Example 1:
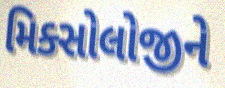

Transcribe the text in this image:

મિક્સોલોજીને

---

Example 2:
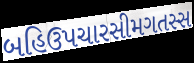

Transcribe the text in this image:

બહિઉપચારસીમગતસ્સ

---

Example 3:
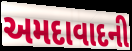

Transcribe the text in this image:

અમદાવાદની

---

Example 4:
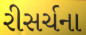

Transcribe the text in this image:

રીસર્ચના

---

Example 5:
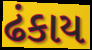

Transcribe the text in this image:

ઢંકાય